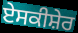
ਏਸਕੀਸ਼ੇਰ